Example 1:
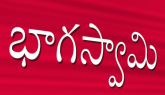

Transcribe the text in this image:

భాగస్వామి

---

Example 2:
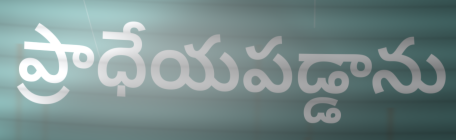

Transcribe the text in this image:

ప్రాధేయపడ్డాను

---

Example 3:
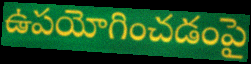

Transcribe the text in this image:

ఉపయోగించడంపై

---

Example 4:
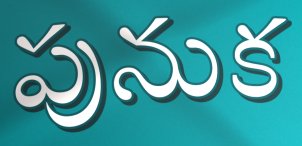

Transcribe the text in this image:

పునుక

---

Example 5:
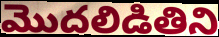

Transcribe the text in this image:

మొదలిడితిని